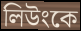
লিউংকে